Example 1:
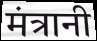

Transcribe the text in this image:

मंत्रानी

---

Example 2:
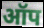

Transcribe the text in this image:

ऑप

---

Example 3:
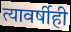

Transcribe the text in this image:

त्यावर्षीही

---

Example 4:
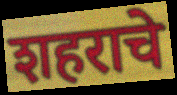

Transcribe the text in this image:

शहराचे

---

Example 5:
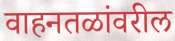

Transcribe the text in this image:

वाहनतळांवरील